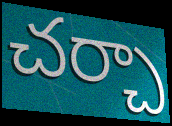
చర్చా